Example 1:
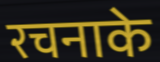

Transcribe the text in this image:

रचनाके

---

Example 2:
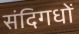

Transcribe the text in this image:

संदिगधों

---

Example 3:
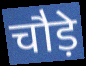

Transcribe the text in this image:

चौड़े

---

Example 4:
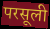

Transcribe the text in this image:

परसूली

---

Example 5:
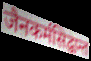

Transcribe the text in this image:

जैनकर्मसिद्धान्त